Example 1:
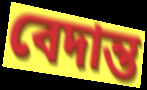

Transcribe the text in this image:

বেদান্ত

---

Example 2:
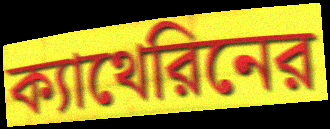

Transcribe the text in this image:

ক্যাথেরিনের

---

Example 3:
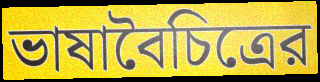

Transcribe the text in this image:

ভাষাবৈচিত্রের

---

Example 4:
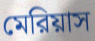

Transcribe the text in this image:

মেরিয়াস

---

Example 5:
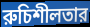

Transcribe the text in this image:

রুচিশীলতার